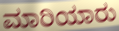
ಮಾರಿಯಾರು